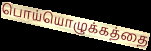
பொய்யொழுக்கத்தை